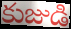
కుజుడి